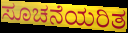
ಸೂಚನೆಯರಿತ